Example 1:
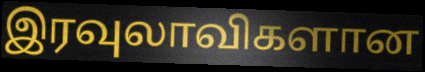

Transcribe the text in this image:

இரவுலாவிகளான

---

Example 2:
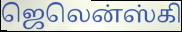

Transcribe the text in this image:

ஜெலென்ஸ்கி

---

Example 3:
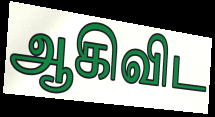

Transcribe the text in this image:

ஆகிவிட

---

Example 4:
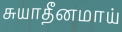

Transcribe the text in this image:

சுயாதீனமாய்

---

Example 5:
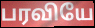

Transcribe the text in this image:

பரவியே